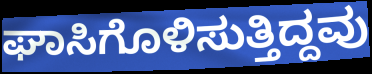
ಘಾಸಿಗೊಳಿಸುತ್ತಿದ್ದವು